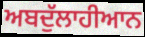
ਅਬਦੁੱਲਾਹੀਆਨ